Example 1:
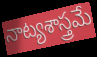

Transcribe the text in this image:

నాట్యశాస్త్రమే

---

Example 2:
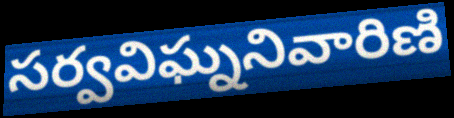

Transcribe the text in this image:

సర్వవిఘ్ననివారిణి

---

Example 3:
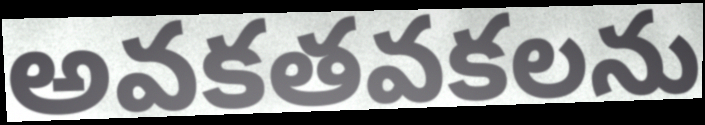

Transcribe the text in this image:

అవకతవకలను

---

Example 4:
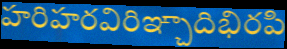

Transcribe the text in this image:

హరిహరవిరిఞ్చాదిభిరపి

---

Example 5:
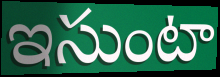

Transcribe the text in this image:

ఇసుంటా